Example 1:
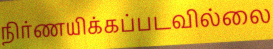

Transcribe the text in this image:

நிர்ணயிக்கப்படவில்லை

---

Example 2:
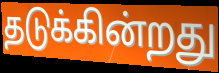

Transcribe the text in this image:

தடுக்கின்றது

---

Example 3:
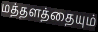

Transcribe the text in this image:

மத்தளத்தையும்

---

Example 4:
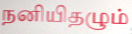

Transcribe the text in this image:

நனியிதழும்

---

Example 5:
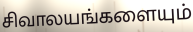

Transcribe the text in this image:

சிவாலயங்களையும்